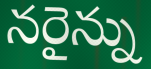
నరైన్ను